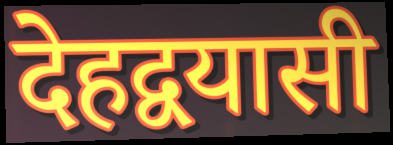
देहद्वयासी